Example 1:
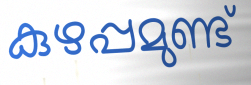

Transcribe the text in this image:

കുഴപ്പമുണ്ട്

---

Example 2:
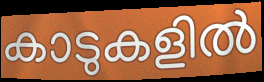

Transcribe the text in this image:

കാടുകളിൽ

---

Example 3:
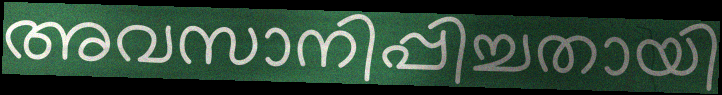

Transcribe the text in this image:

അവസാനിപ്പിച്ചതായി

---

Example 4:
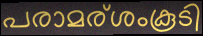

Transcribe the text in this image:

പരാമര്ശംകൂടി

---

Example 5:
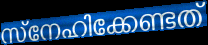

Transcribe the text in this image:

സ്‌നേഹിക്കേണ്ടത്